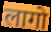
लागो